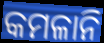
କମଳାନି